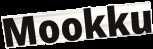
Mookku